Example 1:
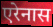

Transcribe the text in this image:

एरेनास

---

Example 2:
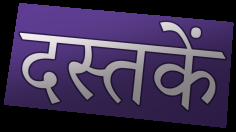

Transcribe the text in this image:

दस्तकें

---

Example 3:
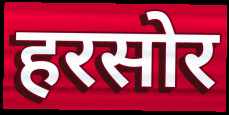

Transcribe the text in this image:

हरसोर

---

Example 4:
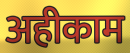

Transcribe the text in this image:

अहीकाम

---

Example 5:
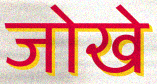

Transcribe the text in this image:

जोखे